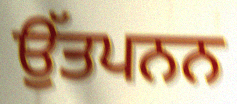
ਉੱਤਪਨਨ